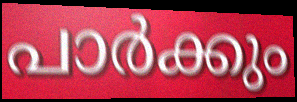
പാർക്കും